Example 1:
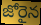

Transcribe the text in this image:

జోరైన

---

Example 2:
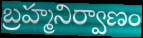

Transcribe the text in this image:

బ్రహ్మనిర్వాణం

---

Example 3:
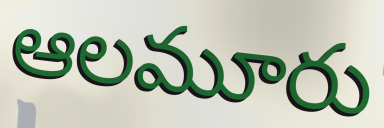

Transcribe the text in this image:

ఆలమూరు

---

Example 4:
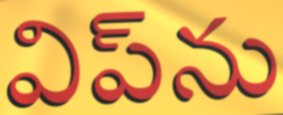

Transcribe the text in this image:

విప్‌ను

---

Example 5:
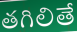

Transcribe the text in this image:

తగిలితే